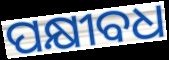
ପକ୍ଷୀବଧ